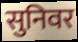
सुनिवर